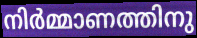
നിർമ്മാണത്തിനു